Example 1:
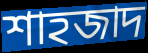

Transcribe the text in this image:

শাহজাদ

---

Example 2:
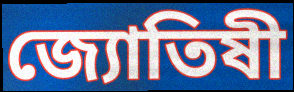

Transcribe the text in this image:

জ্যোতিষী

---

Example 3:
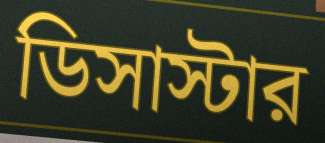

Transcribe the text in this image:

ডিসাস্টার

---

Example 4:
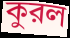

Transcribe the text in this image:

কুরল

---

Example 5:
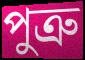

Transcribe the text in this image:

পুত্রু